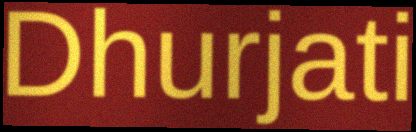
Dhurjati